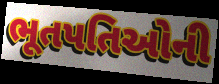
ભૂતપતિઓની